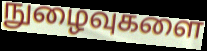
நுழைவுகளை